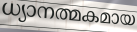
ധ്യാനത്മകമായ